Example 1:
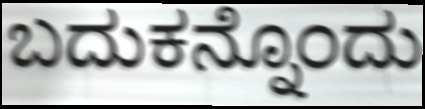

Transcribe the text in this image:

ಬದುಕನ್ನೊಂದು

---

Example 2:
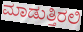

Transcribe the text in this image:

ಮಾಡುತ್ತಿರಲಿ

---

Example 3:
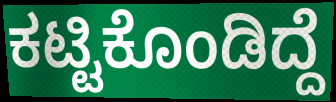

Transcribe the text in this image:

ಕಟ್ಟಿಕೊಂಡಿದ್ದೆ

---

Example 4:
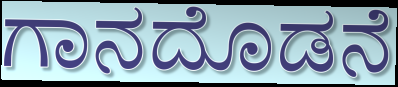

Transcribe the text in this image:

ಗಾನದೊಡನೆ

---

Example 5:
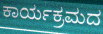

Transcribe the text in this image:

ಕಾರ್ಯಕ್ರಮದ